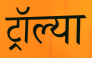
ट्रॉल्या